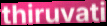
thiruvati